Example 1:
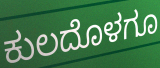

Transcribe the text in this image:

ಕುಲದೊಳಗೂ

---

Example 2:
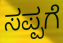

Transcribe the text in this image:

ಸಪ್ಪಗೆ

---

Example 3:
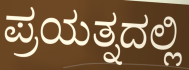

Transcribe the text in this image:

ಪ್ರಯತ್ನದಲ್ಲಿ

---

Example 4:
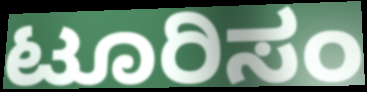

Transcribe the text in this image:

ಟೂರಿಸಂ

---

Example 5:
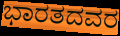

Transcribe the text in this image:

ಭಾರತದವರ